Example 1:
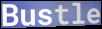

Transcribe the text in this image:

Bustle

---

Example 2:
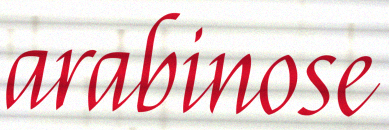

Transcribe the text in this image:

arabinose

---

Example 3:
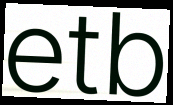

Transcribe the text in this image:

etb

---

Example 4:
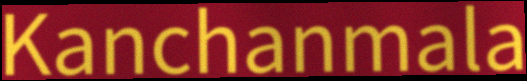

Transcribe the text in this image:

Kanchanmala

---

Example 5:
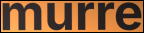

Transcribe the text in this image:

murre